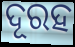
ଦୂରହ